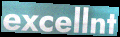
excellnt